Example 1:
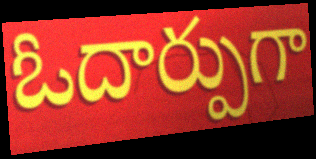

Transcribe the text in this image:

ఓదార్పుగా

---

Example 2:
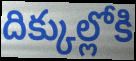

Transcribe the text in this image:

దిక్కుల్లోకి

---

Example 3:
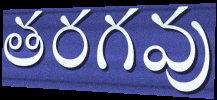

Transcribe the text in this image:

తరగవు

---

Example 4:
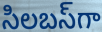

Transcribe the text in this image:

సిలబస్‌గా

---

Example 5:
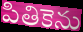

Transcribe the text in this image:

పితికెను